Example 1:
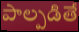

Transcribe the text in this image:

పాల్పడితే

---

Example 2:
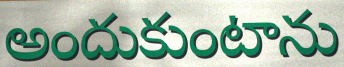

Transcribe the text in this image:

అందుకుంటాను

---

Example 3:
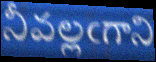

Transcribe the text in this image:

నీవల్లఁగాని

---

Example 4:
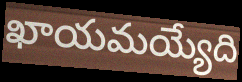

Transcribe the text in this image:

ఖాయమయ్యేది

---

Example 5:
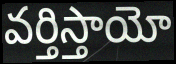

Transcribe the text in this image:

వర్తిస్తాయో